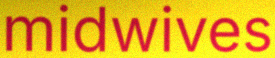
midwives